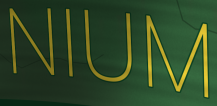
NIUM